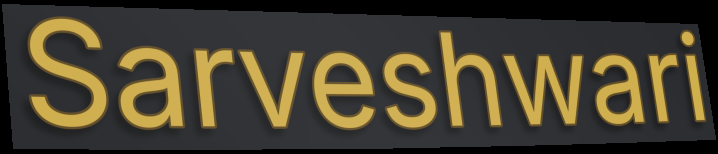
Sarveshwari